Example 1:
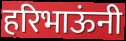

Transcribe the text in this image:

हरिभाऊंनी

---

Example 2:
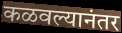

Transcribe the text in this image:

कळवल्यानंतर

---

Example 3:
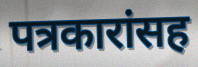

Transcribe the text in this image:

पत्रकारांसह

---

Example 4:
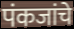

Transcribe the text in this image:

पंकजांचे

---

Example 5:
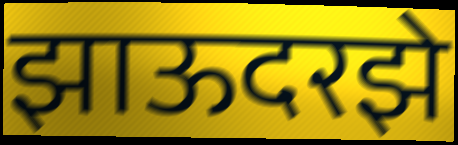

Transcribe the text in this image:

झाऊदरझे